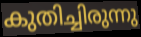
കുതിച്ചിരുന്നു